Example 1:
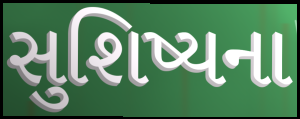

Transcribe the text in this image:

સુશિષ્યના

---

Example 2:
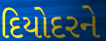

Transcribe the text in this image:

દિયોદરને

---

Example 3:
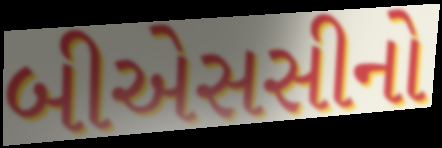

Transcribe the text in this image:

બીએસસીનો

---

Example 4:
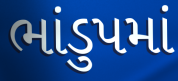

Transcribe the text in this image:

ભાંડુપમાં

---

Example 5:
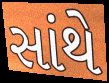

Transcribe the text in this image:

સાંથે